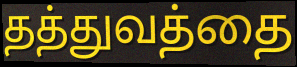
தத்துவத்தை